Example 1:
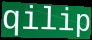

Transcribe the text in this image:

qilip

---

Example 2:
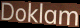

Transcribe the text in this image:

Doklam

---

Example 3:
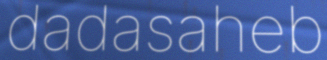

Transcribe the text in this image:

dadasaheb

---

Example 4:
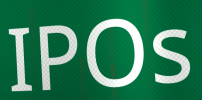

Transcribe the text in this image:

IPOs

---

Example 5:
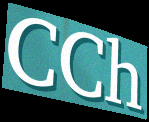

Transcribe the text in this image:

CCh